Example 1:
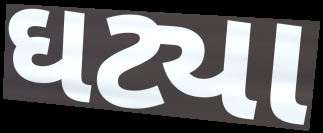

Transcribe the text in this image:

ઘટ્યા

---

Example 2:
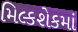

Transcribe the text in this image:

મિલ્કશેકમાં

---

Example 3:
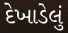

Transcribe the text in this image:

દેખાડેલું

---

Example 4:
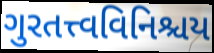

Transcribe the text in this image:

ગુરતત્ત્વવિનિશ્ચય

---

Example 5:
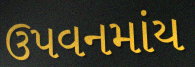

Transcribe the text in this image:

ઉપવનમાંય